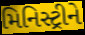
મિનિસ્ટ્રીને